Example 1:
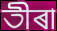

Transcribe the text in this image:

তীৰা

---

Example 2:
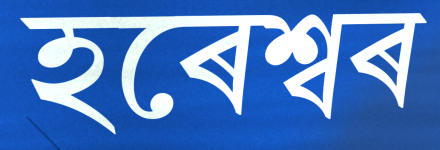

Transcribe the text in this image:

হৰেশ্বৰ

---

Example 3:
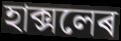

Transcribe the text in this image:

হাক্সলেৰ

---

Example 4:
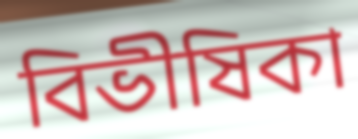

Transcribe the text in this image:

বিভীষিকা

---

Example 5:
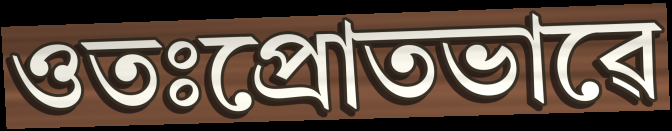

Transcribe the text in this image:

ওতঃপ্ৰোতভাৱে